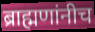
ब्राह्मणांनीच